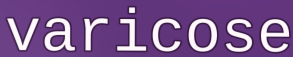
varicose